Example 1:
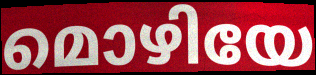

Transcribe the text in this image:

മൊഴിയേ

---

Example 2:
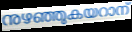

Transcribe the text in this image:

നുഴഞ്ഞുകയറാന്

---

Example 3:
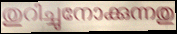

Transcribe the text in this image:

തുറിച്ചുനോക്കുന്നതു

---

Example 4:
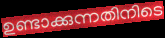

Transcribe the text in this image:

ഉണ്ടാക്കുന്നതിനിടെ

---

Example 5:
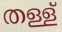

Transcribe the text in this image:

തള്ള്